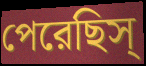
পেরেছিস্